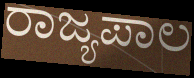
ರಾಜ್ಯಪಾಲ